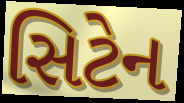
સિટેન